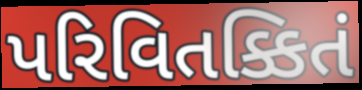
પરિવિતક્કિતં